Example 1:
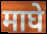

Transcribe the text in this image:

माघे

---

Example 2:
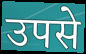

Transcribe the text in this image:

उपसे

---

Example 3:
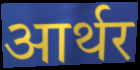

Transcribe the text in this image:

आर्थर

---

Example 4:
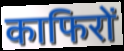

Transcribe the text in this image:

काफिरों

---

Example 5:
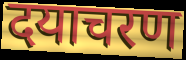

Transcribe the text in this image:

दयाचरण